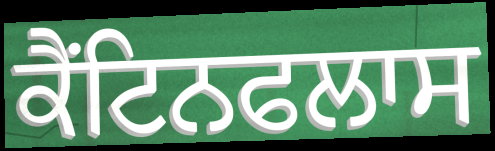
ਕੈਂਟਿਨਫਲਾਸ